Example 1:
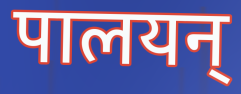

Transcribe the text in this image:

पालयन्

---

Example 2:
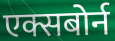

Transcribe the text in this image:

एक्सबोर्न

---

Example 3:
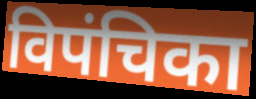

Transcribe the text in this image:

विपंचिका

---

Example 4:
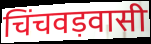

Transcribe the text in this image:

चिंचवड़वासी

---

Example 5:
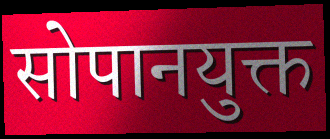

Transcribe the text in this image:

सोपानयुक्त